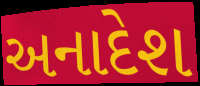
અનાદેશ